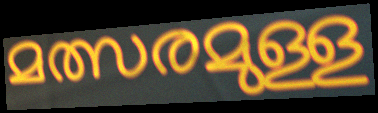
മത്സരമുള്ള